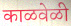
काळवेळी